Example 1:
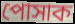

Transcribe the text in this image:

পোসাক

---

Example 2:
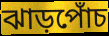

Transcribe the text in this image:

ঝাড়পোঁচ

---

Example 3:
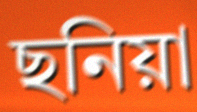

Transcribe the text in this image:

ছনিয়া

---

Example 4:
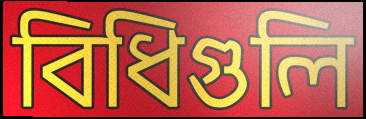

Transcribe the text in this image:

বিধিগুলি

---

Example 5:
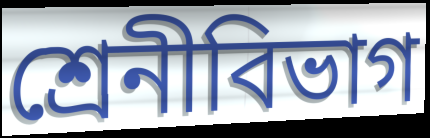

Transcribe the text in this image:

শ্রেনীবিভাগ